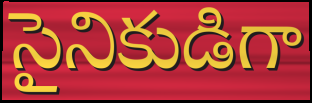
సైనికుడిగా